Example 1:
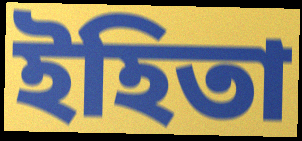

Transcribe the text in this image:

ইহিতা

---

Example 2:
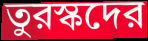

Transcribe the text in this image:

তুরস্কদের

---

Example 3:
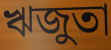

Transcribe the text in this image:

ঋজুতা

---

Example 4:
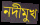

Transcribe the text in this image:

নদীমুখ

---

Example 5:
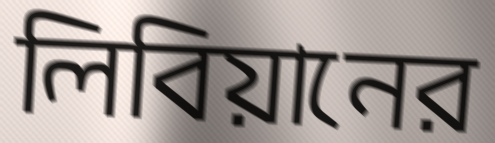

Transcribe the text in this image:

লিবিয়ানের